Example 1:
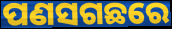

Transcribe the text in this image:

ପଣସଗଛରେ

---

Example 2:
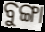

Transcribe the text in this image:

ବୁଙ୍ଗା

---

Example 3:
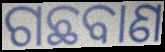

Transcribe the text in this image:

ଗଛବାଣ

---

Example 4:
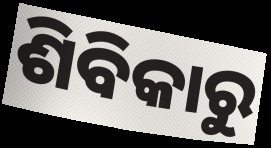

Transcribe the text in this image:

ଶିବିକାରୁ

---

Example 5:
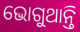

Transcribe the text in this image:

ଭୋଗୁଥାନ୍ତି